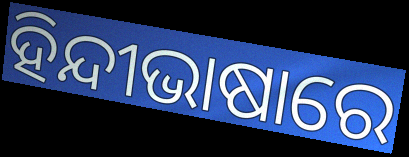
ହିନ୍ଦୀଭାଷାରେ